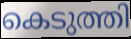
കെടുത്തി